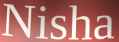
Nisha